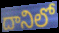
దానిలో